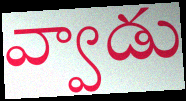
వ్వాడు